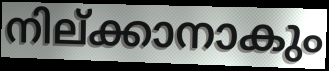
നില്ക്കാനാകും